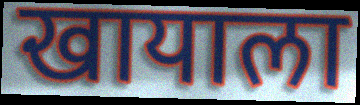
खायाला